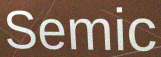
Semic